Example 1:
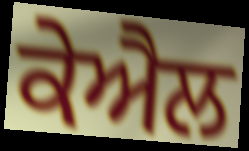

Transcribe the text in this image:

ਕੇਐਲ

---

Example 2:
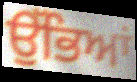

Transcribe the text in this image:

ਉੱਭਿਆਂ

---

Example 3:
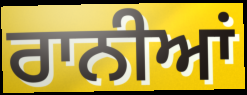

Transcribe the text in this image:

ਰਾਨੀਆਂ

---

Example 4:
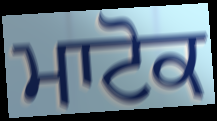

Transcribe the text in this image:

ਮਾਟੋਕ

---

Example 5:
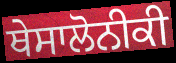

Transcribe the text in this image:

ਥੇਸਾਲੋਨੀਕੀ